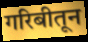
गरिबीतून